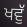
ਖਵੁੱ